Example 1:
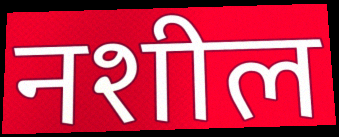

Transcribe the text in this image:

नशील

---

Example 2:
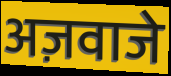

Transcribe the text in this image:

अज़वाजे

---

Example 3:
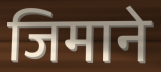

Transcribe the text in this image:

जिमाने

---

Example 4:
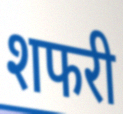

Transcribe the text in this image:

शफरी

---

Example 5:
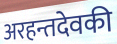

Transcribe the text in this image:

अरहन्तदेवकी